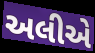
અલીએ